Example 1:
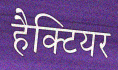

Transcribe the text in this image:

हैक्टियर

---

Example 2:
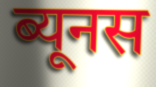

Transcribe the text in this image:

ब्यूनस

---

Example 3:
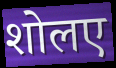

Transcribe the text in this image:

शोलए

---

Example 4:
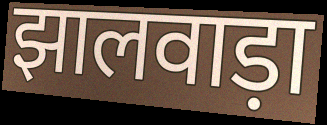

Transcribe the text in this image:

झालवाड़ा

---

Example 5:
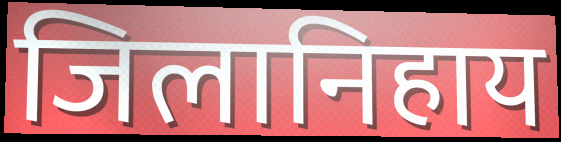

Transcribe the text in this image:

जिलानिहाय